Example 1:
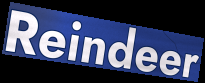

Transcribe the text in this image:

Reindeer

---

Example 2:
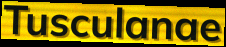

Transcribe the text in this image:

Tusculanae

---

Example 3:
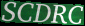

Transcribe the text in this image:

SCDRC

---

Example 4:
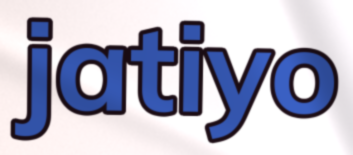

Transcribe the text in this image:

jatiyo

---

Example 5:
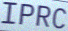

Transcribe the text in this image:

IPRC